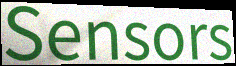
Sensors